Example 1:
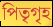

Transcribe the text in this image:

পিতৃগৃহ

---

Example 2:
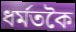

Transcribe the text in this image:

ধৰ্মতকৈ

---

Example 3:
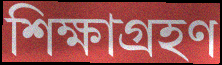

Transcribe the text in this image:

শিক্ষাগ্ৰহণ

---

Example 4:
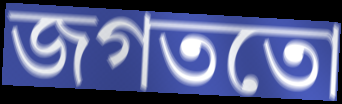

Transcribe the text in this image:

জগততো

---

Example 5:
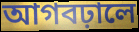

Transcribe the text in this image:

আগবঢ়ালে